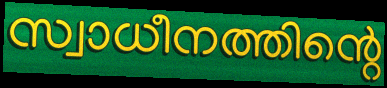
സ്വാധീനത്തിന്റെ